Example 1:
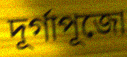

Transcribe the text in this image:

দূর্গাপূজো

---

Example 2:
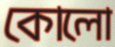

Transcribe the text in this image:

কোলো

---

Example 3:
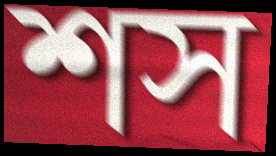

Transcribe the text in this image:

শস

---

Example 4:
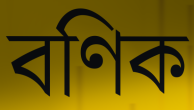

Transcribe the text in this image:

বণিক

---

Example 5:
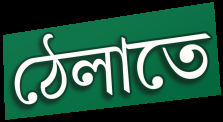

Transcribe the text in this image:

ঠেলাতে